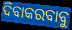
ଦିବାକରବାବୁ